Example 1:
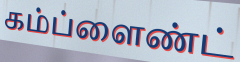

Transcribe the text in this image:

கம்ப்ளைண்ட்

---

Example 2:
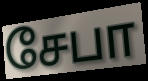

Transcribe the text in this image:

சேபா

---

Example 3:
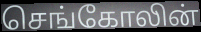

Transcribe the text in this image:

செங்கோலின்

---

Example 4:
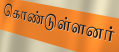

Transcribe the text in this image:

கொண்டுள்ளனர்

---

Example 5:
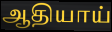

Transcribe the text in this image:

ஆதியாய்